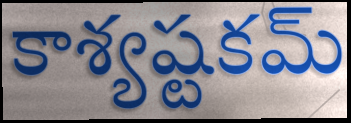
కాశ్యష్టకమ్